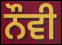
ਨੌਵੀ